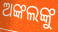
ଅଙ୍କଲଙ୍କୁ